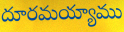
దూరమయ్యాము